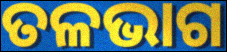
ତଳଭାଗ